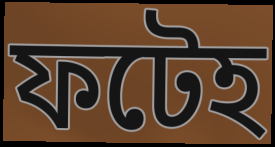
ফটেহ